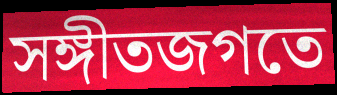
সঙ্গীতজগতে